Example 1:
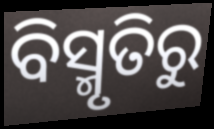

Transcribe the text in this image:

ବିସ୍ମୃତିରୁ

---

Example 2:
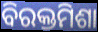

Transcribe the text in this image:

ବିରକ୍ତମିଶା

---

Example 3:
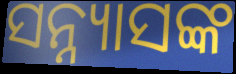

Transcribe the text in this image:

ସନ୍ନ୍ୟାସଙ୍କ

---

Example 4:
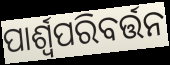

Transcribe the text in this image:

ପାର୍ଶ୍ଵପରିବର୍ତ୍ତନ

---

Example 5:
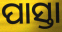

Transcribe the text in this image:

ପାସ୍ତା